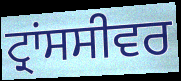
ਟ੍ਰਾਂਸਸੀਵਰ